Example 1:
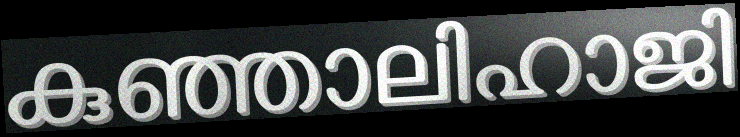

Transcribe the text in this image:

കുഞ്ഞാലിഹാജി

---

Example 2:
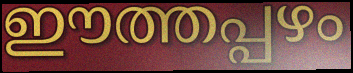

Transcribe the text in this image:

ഈത്തപ്പഴം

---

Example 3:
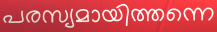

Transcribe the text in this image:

പരസ്യമായിത്തന്നെ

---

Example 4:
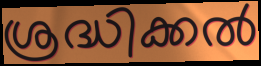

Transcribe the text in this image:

ശ്രദ്ധിക്കൽ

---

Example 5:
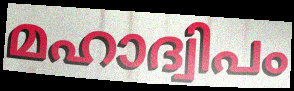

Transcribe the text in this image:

മഹാദ്വിപം